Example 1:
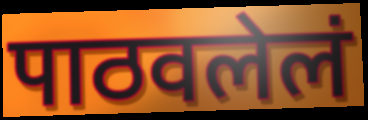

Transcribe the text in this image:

पाठवलेलं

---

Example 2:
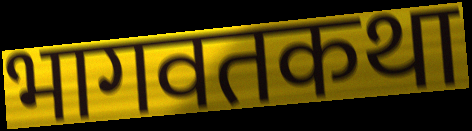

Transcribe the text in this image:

भागवतकथा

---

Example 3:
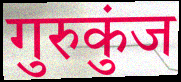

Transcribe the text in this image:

गुरुकुंज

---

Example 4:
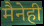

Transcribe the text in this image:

मैनेही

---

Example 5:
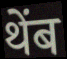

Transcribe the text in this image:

थेंब